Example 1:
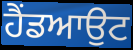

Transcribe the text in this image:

ਹੈਂਡਆਉਟ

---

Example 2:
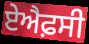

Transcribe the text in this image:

ਏਐਫ਼ਸੀ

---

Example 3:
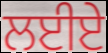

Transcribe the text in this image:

ਲਈਏ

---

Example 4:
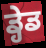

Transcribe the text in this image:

ਡ੍ਹੇਡ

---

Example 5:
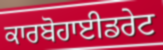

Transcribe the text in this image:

ਕਾਰਬੋਹਾਈਡਰੇਟ